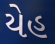
યેહ